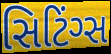
સિટિંગ્સ